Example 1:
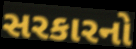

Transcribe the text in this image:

સરકારનો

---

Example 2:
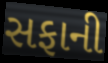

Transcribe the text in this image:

સફાની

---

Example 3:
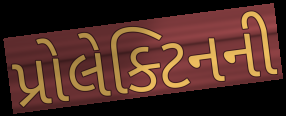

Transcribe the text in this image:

પ્રોલેક્ટિનની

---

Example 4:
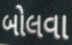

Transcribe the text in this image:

બોલવા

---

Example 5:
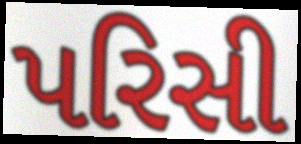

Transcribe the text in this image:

પરિસી